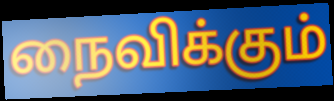
நைவிக்கும்